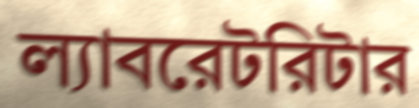
ল্যাবরেটরিটার